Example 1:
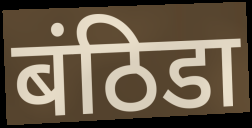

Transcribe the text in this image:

बंठिडा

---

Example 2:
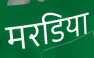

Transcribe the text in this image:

मरडिया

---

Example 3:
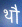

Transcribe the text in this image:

थौ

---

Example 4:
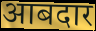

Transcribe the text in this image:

आबदार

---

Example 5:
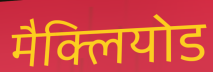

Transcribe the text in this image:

मैक्लियोड